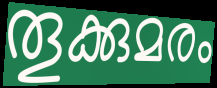
തൂക്കുമരം